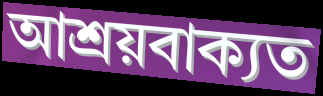
আশ্ৰয়বাক্য়ত